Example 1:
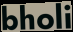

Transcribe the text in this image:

bholi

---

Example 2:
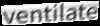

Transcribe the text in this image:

ventilate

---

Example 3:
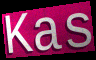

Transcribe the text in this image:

Kas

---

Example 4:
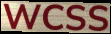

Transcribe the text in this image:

WCSS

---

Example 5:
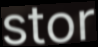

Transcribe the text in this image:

stor